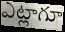
ఎట్లాగూ